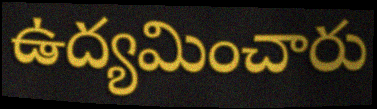
ఉద్యమించారు